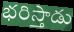
భరిస్తాడు